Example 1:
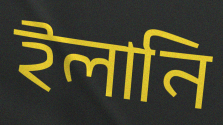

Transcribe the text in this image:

ইলানি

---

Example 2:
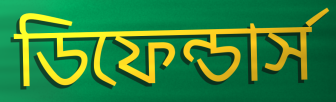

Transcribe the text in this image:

ডিফেন্ডার্স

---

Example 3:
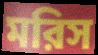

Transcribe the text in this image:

মরিস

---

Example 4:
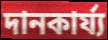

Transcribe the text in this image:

দানকার্য্য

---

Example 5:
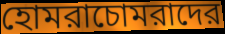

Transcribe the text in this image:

হোমরাচোমরাদের